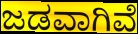
ಜಡವಾಗಿವೆ